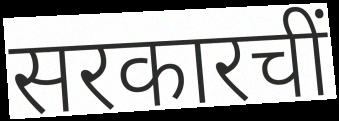
सरकारचीं